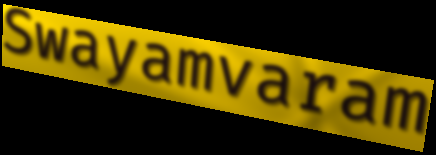
Swayamvaram